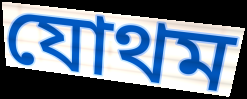
যোথম